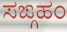
ಸಙ್ಗಹಂ